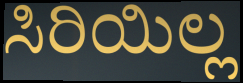
ಸಿರಿಯಿಲ್ಲ